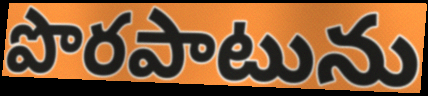
పొరపాటును